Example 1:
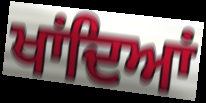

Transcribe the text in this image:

ਖਾਂਦਿਆਂ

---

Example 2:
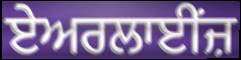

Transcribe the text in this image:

ਏਅਰਲਾਈਂਜ਼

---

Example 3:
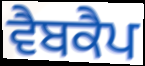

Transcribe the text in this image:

ਵੈਬਕੈਪ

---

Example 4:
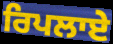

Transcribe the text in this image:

ਰਿਪਲਾਏ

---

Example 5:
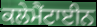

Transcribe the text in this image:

ਕਲੇਮੈਂਟਾਈਨ